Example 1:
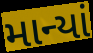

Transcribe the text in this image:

માન્યાં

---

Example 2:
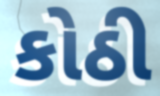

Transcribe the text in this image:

કોઠી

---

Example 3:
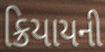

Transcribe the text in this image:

ક્રિયાયની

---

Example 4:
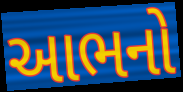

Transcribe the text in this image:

આભનો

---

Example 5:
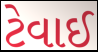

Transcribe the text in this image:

ટેવાઈ